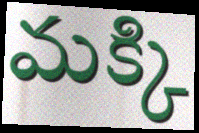
మక్కి